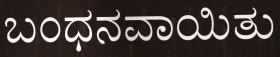
ಬಂಧನವಾಯಿತು